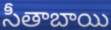
సీతాబాయి